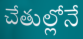
చేతుల్లోనే